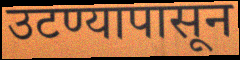
उटण्यापासून